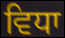
ਵਿਧਾ